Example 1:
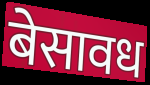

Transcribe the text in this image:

बेसावध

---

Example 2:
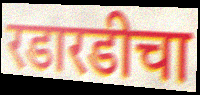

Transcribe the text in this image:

रडारडीचा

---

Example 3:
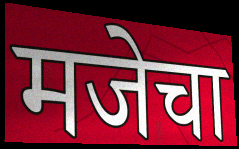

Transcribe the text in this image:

मजेचा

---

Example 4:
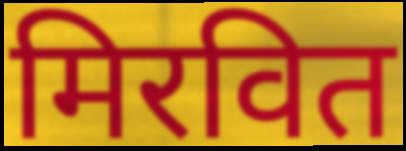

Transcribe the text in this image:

मिरवित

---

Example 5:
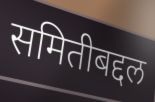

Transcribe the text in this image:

समितीबद्दल